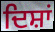
ਦਿਸ਼ਾਂ